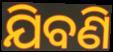
ଯିବଣି